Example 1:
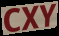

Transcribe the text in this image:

CXY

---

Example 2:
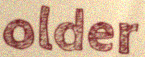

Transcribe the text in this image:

older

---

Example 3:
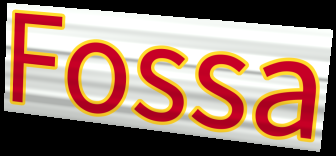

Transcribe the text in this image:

Fossa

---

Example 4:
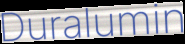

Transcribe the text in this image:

Duralumin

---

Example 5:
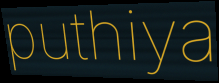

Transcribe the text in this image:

puthiya